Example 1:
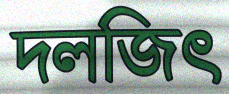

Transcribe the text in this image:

দলজিৎ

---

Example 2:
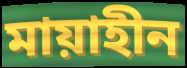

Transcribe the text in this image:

মায়াহীন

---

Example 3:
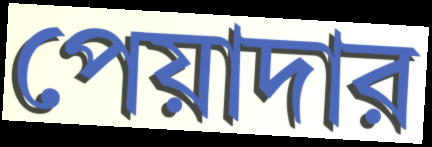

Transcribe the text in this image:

পেয়াদার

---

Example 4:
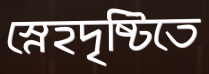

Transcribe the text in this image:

স্নেহদৃষ্টিতে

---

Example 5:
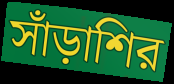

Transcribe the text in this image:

সাঁড়াশির